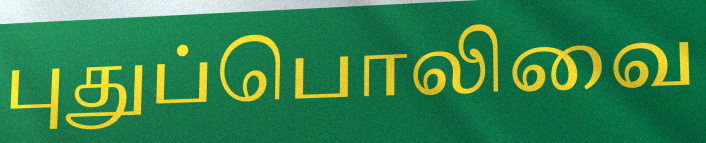
புதுப்பொலிவை